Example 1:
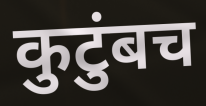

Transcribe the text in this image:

कुटुंबच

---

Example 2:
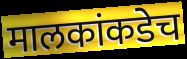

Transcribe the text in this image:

मालकांकडेच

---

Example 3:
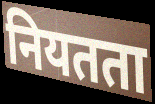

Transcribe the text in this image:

नियतता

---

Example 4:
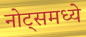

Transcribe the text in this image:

नोट्समध्ये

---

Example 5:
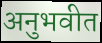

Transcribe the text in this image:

अनुभवीत